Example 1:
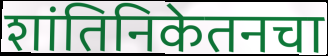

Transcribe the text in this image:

शांतिनिकेतनचा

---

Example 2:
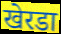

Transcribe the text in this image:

खेरडा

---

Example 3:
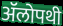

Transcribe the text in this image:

ॲॅलोपथी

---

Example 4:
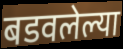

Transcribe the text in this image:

बडवलेल्या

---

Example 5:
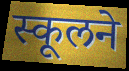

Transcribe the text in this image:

स्कूलने